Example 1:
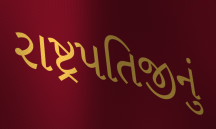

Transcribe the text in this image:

રાષ્ટ્રપતિજીનું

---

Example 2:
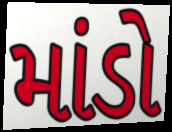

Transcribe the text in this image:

માંડો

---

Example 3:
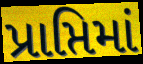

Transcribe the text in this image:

પ્રાપ્તિમાં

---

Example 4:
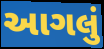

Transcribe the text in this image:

આગલું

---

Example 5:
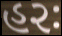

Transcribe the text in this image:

હરઃ